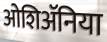
ओशिॲनिया